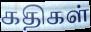
கதிகள்